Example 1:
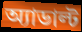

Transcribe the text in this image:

অ্যাডাল্ট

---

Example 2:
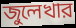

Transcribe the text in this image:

জুলেখার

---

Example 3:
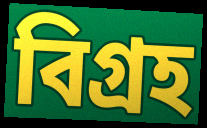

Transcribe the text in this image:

বিগ্রহ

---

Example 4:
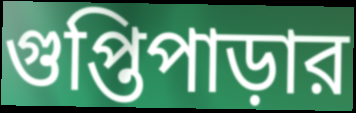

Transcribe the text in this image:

গুপ্তিপাড়ার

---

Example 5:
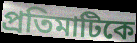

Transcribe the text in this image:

প্রতিমাটিকে